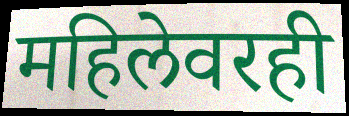
महिलेवरही